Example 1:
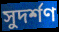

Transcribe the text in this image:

সুদর্শণ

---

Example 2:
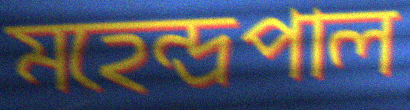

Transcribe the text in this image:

মহেন্দ্রপাল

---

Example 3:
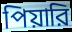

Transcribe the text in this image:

পিয়ারি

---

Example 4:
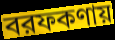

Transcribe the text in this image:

বরফকণায়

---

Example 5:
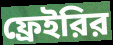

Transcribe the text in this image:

ফ্রেইরির